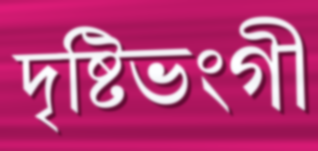
দৃষ্টিভংগী